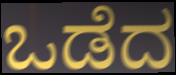
ಒಡೆದ